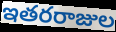
ఇతరరాజుల